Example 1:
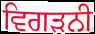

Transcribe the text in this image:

ਵਿਗੜਨੀ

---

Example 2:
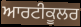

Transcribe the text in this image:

ਆਰਟੀਕੂਲਰ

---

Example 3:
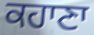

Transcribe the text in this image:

ਕਹਾਣਾ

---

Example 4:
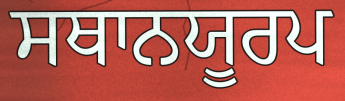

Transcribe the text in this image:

ਸਥਾਨਯੂਰਪ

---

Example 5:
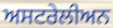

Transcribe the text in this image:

ਅਸਟਰੇਲੀਅਨ